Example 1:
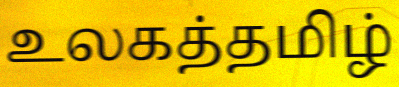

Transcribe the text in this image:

உலகத்தமிழ்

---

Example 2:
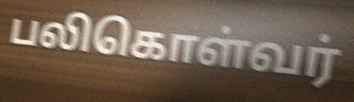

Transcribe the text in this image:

பலிகொள்வர்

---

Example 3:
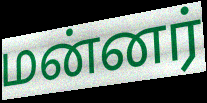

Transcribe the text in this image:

மன்னர்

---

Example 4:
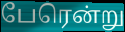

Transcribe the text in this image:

பேரென்று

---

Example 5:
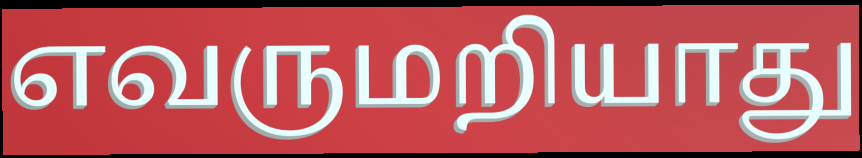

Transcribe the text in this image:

எவருமறியாது